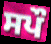
ਸਪੌ